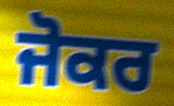
ਜੋਕਰ